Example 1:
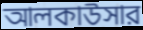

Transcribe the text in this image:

আলকাউসার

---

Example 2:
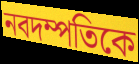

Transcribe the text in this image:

নবদম্পতিকে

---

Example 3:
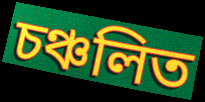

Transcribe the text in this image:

চঞ্চলিত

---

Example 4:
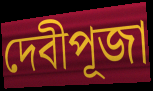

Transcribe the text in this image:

দেবীপূজা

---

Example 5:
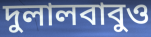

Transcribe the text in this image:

দুলালবাবুও